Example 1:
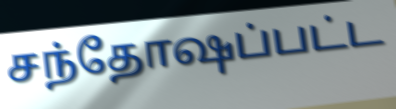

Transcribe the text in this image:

சந்தோஷப்பட்ட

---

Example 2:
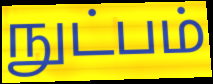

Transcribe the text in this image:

நுட்பம்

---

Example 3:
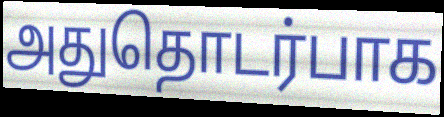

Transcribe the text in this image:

அதுதொடர்பாக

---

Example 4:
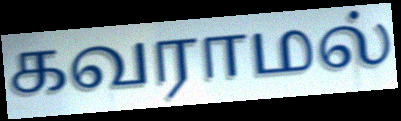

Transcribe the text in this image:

கவராமல்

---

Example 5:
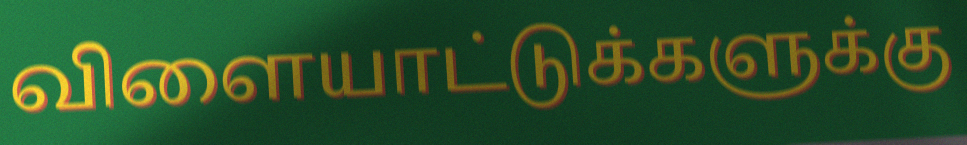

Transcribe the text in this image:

விளையாட்டுக்களுக்கு